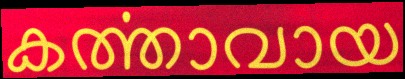
കൎത്താവായ